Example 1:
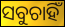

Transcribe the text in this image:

ସବୁଚାହିଁ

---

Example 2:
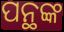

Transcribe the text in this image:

ପନ୍ଥଙ୍କ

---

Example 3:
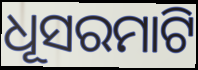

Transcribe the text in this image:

ଧୂସରମାଟି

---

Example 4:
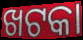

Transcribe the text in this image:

ଖଟକା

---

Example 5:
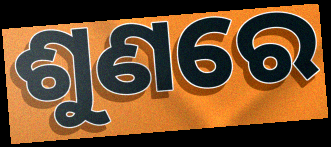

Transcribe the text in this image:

ଶୁଣରେ